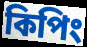
কিপিং